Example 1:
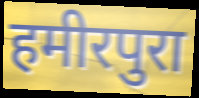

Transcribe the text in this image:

हमीरपुरा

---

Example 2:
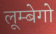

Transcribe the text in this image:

लूम्बेगो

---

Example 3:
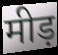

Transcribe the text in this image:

मीड़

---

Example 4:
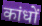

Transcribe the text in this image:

कांधों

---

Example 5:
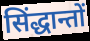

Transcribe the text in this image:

सिंद्धान्तों